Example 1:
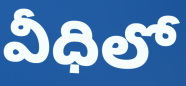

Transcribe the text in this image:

వీధిలో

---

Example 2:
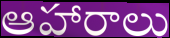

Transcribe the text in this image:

ఆహారాలు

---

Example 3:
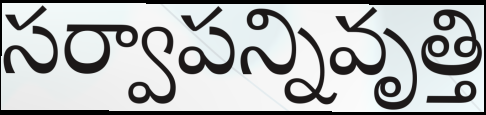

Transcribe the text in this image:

సర్వాపన్నివృత్తి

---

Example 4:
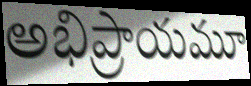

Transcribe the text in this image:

అభిప్రాయమూ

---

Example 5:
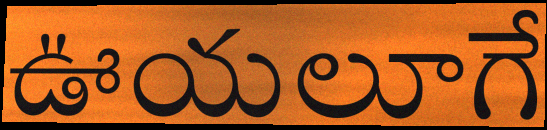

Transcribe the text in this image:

ఊయలూగే